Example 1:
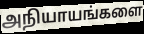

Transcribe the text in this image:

அநியாயங்களை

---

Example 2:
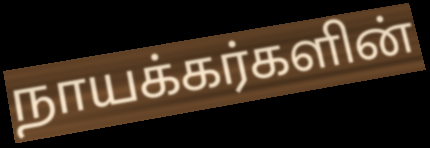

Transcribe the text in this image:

நாயக்கர்களின்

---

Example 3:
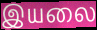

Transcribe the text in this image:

இயலை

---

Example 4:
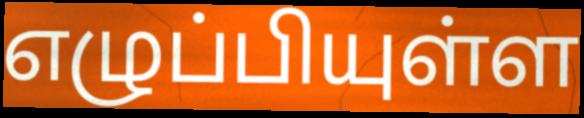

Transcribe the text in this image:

எழுப்பியுள்ள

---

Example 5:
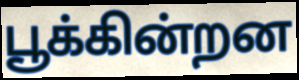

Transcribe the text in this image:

பூக்கின்றன